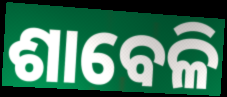
ଶାବେଳି